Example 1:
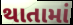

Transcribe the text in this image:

થાતામાં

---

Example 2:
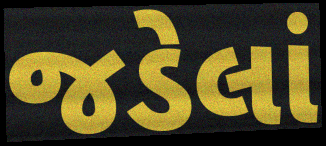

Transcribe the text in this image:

જડેલાં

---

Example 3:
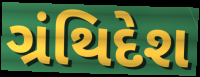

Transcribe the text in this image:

ગ્રંથિદેશ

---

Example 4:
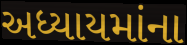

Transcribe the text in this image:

અધ્યાયમાંના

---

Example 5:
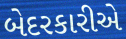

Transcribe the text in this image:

બેદરકારીએ